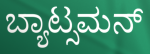
ಬ್ಯಾಟ್ಸಮನ್